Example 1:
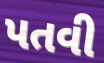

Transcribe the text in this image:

પતવી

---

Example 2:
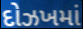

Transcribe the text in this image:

દોઝખમાં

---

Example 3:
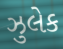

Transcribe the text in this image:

ઝુલેક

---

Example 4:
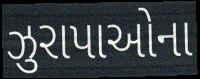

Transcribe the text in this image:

ઝુરાપાઓના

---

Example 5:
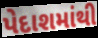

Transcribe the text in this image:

પેદાશમાંથી